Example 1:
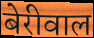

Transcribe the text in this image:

बेरीवाल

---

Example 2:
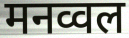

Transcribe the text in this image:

मनव्वल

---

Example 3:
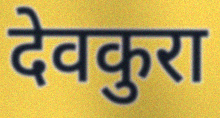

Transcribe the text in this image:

देवकुरा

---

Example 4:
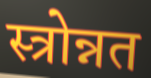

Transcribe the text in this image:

स्त्रोन्नत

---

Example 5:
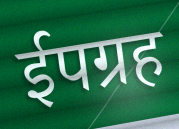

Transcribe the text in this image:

ईपग्रह